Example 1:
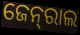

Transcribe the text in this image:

ଜେନ୍‌ରାଲ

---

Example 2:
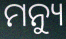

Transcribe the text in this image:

ମନ୍ୟୁ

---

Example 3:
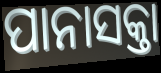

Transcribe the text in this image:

ପାନାସକ୍ତା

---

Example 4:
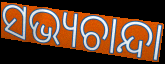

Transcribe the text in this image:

ସଭ୍ୟଚାନ୍ଦା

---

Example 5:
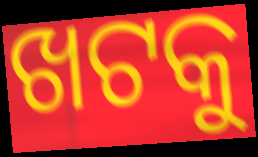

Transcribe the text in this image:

ଖଟକୁ